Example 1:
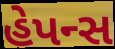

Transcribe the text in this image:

હેપન્સ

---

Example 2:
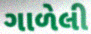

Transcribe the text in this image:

ગાળેલી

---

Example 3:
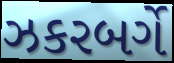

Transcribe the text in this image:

ઝકરબર્ગે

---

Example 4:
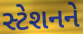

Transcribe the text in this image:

સ્ટેશનને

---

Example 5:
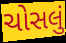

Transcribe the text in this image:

ચોસલું